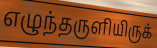
எழுந்தருளியிருக்